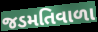
જડમતિવાળા